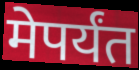
मेपर्यंत